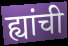
ह्यांची